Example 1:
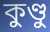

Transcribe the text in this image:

কুণ্ডু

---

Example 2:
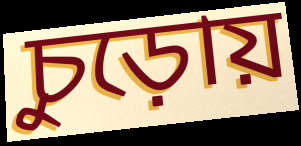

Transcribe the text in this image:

চুড়োয়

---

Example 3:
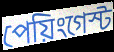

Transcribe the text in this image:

পেয়িংগেস্ট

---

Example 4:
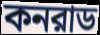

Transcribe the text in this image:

কনরাড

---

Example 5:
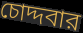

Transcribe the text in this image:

চোদ্দবার